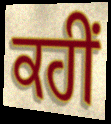
ਕਹੀਂ